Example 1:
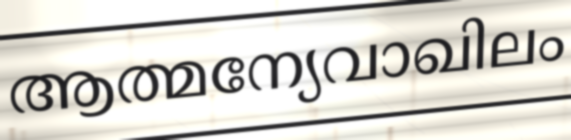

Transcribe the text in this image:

ആത്മന്യേവാഖിലം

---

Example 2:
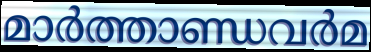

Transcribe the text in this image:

മാർത്താണ്ഡവർമ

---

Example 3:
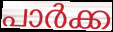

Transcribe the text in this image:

പാർക്ക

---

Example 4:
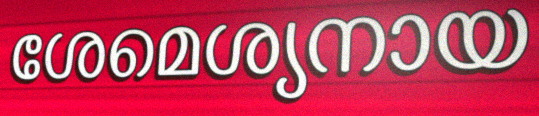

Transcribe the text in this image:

ശേമെശ്യനായ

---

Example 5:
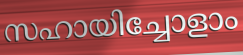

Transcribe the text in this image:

സഹായിച്ചോളാം